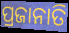
ପ୍ରଜାନାତି